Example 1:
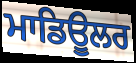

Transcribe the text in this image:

ਮਾਡਿਊਲਰ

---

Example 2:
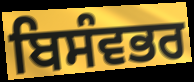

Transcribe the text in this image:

ਬਿਸੰਵਭਰ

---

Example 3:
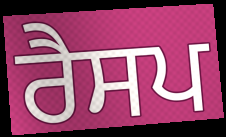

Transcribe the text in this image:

ਰੈਸਪ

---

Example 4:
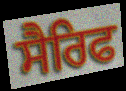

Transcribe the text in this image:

ਸੈਰਿਫ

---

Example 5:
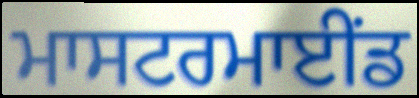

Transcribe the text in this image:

ਮਾਸਟਰਮਾਈਂਡ